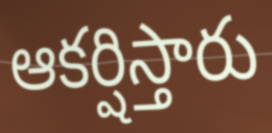
ఆకర్షిస్తారు